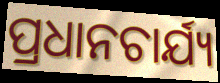
ପ୍ରଧାନଚାର୍ଯ୍ୟ